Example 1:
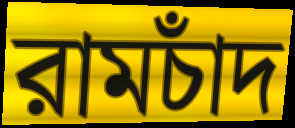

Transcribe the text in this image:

রামচাঁদ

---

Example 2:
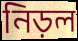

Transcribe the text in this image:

নিড়ল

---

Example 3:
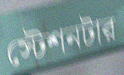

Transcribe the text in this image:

স্টেশনটার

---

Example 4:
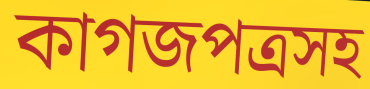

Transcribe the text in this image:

কাগজপত্রসহ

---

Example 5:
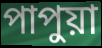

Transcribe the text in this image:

পাপুয়া